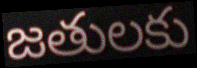
జతులకు